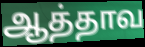
ஆத்தாவ